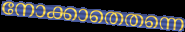
നോക്കാതെതന്നെ